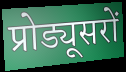
प्रोड्यूसरों